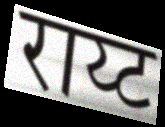
राय्ट